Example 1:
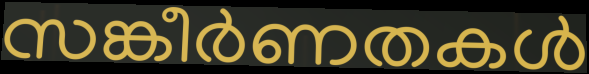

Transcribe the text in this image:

സങ്കീർണതകൾ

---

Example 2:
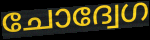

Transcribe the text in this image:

ചോദ്വേഗ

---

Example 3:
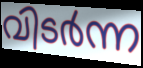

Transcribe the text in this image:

വിടർന്ന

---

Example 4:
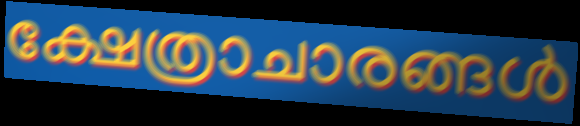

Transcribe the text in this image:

ക്ഷേത്രാചാരങ്ങൾ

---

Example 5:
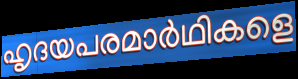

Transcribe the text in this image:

ഹൃദയപരമാർഥികളെ